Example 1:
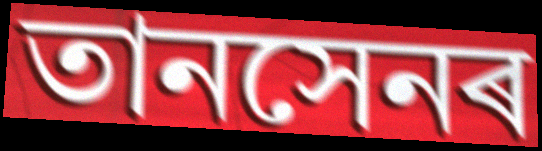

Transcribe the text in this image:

তানসেনৰ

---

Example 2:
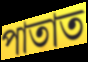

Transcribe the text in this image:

পাতাত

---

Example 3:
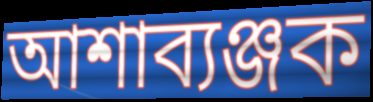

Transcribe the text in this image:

আশাব্যঞ্জক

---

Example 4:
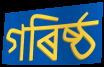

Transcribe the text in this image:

গৰিষ্ঠ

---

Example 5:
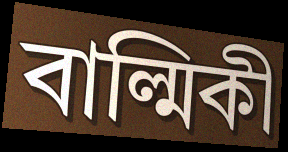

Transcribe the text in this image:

বাল্মিকী